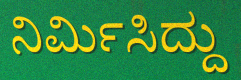
ನಿರ್ಮಿಸಿದ್ದು